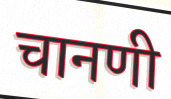
चानणी